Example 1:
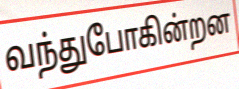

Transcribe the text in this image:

வந்துபோகின்றன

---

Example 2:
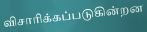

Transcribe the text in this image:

விசாரிக்கப்படுகின்றன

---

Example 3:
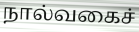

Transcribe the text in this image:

நால்வகைச்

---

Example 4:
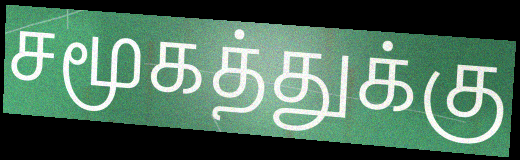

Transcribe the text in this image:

சமூகத்துக்கு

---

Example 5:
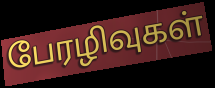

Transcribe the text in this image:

பேரழிவுகள்